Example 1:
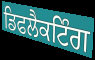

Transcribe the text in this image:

ਡਿਫਲੈਕਟਿੰਗ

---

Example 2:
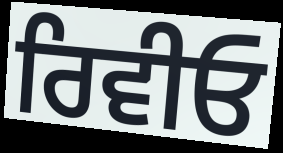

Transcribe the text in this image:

ਰਿਵੀਓ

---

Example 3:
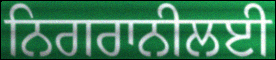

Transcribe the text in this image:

ਨਿਗਰਾਨੀਲਈ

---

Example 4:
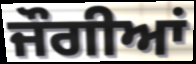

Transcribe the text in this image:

ਜੌਗੀਆਂ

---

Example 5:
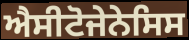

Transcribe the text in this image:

ਐਸੀਟੋਜੇਨੇਸਿਸ